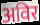
अविर